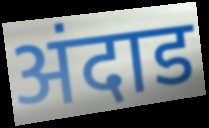
अंदाड